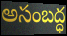
అసంబద్ధ